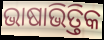
ଭାଷାଭିତ୍ତିକ